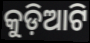
କୁଡ଼ିଆଟି